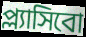
প্ল্যাসিবো